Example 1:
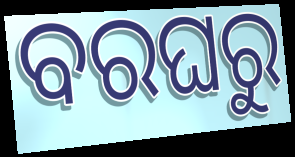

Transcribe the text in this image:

ବରଘରୁ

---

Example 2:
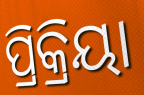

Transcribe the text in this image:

ପ୍ରିକ୍ରିୟା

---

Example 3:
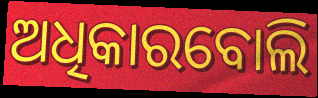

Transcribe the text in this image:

ଅଧିକାରବୋଲି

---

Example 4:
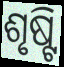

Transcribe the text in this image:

ଶୃଷ୍ଟି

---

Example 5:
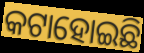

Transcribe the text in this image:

କଟାହୋଇଛି